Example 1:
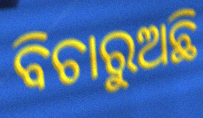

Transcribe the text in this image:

ବିଚାରୁଅଛି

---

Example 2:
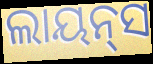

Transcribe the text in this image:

ଲାୟନ୍‌ସ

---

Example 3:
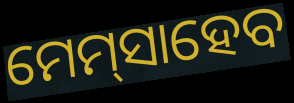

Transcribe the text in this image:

ମେମ୍‌ସାହେବ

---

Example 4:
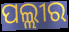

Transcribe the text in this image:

ପଲ୍ଲୀର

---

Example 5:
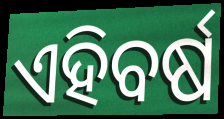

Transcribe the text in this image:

ଏହିବର୍ଷ